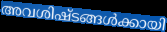
അവശിഷ്ടങ്ങൾക്കായി